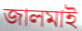
জালমাই